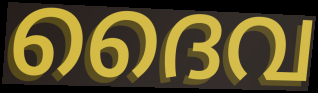
ദൈവ